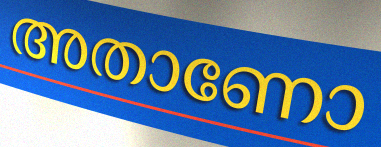
അതാണോ